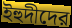
ইহুদীদের